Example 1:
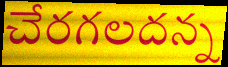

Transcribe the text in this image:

చేరగలదన్న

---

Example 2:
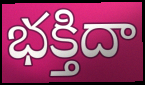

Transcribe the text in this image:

భక్తిదా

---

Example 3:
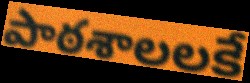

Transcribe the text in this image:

పాఠశాలలకే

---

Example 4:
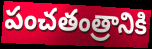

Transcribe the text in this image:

పంచతంత్రానికి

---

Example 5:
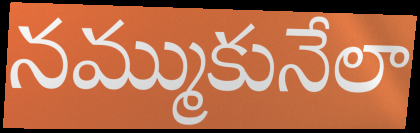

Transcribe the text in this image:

నమ్ముకునేలా